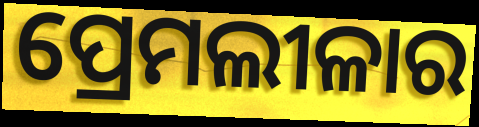
ପ୍ରେମଲୀଳାର